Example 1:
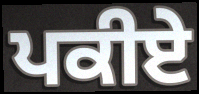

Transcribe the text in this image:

ਪਕੀਏ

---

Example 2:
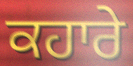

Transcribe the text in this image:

ਕਹਾਰੇ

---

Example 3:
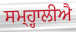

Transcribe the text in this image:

ਸਮ੍ਹ੍ਹਾਲੀਐ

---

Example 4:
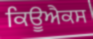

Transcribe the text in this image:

ਕਿਊਐਕਸ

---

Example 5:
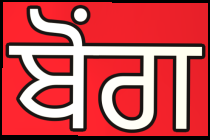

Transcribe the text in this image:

ਬੋਂਗ